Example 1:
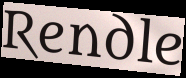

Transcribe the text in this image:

Rendle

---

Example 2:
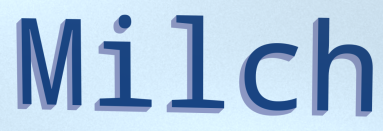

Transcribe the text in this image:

Milch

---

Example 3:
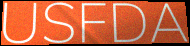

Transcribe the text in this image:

USFDA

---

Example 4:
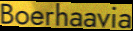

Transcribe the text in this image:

Boerhaavia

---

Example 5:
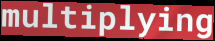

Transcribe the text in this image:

multiplying